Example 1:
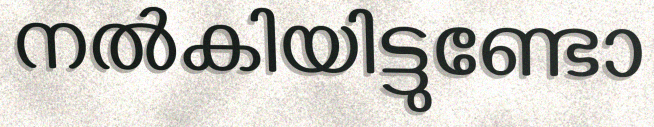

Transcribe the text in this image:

നൽകിയിട്ടുണ്ടോ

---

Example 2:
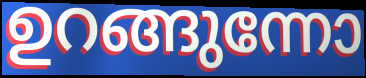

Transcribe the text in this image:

ഉറങ്ങുന്നോ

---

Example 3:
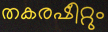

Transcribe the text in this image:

തകരഷീറ്റും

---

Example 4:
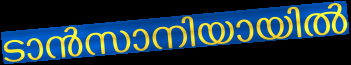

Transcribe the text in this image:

ടാൻസാനിയായിൽ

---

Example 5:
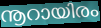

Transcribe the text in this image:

നൂറായിരം